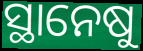
ସ୍ଥାନେଷୁ